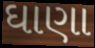
ઘાણા